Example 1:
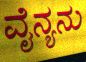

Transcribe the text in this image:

ವೈನ್ಯನು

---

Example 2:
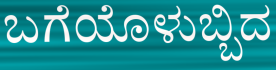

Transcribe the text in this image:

ಬಗೆಯೊಳುಬ್ಬಿದ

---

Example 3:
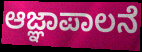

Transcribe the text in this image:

ಆಜ್ಞಾಪಾಲನೆ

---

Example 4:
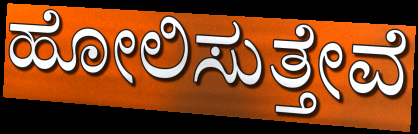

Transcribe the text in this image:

ಹೋಲಿಸುತ್ತೇವೆ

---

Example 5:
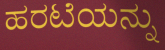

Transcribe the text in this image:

ಹರಟೆಯನ್ನು